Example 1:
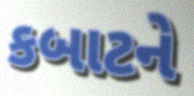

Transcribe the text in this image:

કબાટને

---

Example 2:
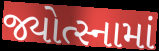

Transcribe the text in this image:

જ્યોત્સ્નામાં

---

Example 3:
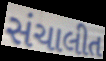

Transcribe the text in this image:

સંચાલીત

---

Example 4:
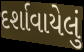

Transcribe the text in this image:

દર્શાવાયેલું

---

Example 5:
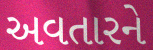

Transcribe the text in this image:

અવતારને